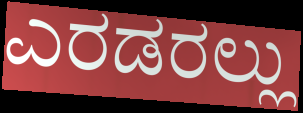
ಎರಡರಲ್ಲು